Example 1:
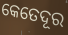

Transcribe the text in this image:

କେତେଦୂର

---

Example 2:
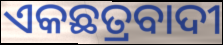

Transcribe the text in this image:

ଏକଛତ୍ରବାଦୀ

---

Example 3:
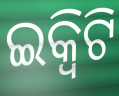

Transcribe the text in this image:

ଇକ୍ବିଟି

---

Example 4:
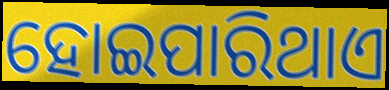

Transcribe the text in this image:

ହୋଇପାରିଥାଏ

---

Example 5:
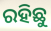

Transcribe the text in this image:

ରହିଛୁ